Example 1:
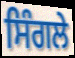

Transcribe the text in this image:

ਸਿੰਗਲੇ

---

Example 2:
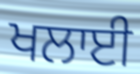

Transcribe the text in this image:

ਖਲਾਈ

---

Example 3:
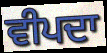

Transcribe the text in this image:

ਵੀਪਦਾ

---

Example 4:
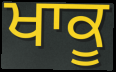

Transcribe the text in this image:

ਖਾਕੂ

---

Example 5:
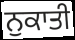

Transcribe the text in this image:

ਨੁਕਾਤੀ